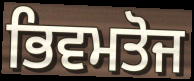
ਭਿਵਮਤੋਜ